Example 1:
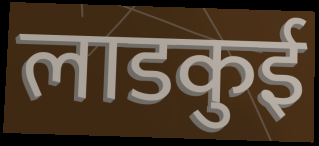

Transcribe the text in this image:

लाडकुई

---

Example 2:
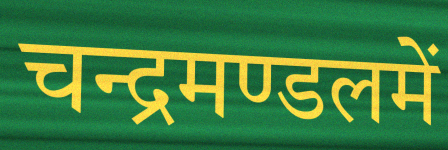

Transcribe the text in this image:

चन्द्रमण्डलमें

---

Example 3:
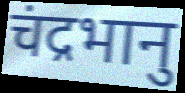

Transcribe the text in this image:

चंद्रभानु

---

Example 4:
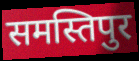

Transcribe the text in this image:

समस्तिपुर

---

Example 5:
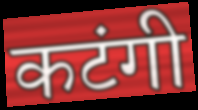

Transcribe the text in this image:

कटंगी